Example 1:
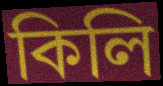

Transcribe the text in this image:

কিলি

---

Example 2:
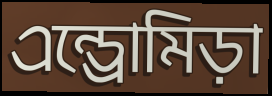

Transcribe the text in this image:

এন্ড্রোমিড়া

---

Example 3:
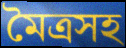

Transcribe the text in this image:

মৈত্রসহ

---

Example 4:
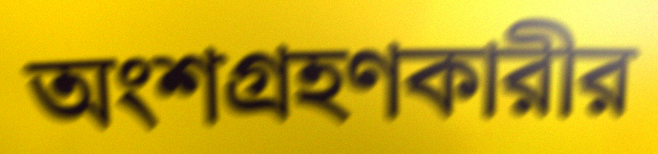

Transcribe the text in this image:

অংশগ্রহণকারীর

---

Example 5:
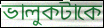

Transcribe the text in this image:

ভালুকটাকে